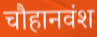
चौहानवंश